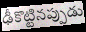
ఢీకొట్టినప్పుడు